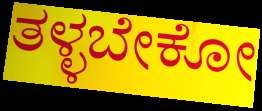
ತಳ್ಳಬೇಕೋ